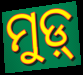
ମୁଡ଼୍